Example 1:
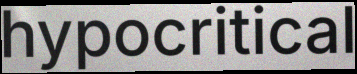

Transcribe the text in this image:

hypocritical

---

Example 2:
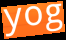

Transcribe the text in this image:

yog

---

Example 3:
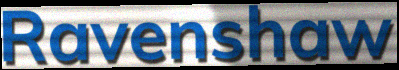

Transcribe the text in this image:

Ravenshaw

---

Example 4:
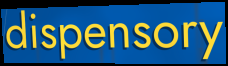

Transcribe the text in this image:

dispensory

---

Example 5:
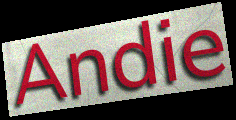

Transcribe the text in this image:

Andie